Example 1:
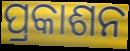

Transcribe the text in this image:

ପ୍ରକାଶନ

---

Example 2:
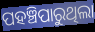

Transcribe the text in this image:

ପହଞ୍ଚିପାରୁଥିଲା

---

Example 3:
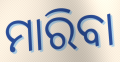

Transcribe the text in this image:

ମାରିବା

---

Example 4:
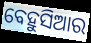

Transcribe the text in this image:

ବେହୁସିଆର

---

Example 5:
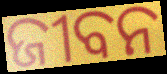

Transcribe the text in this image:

ଜୀବନ